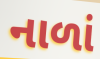
નાળાં